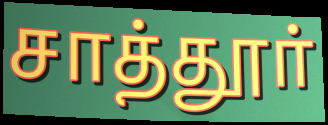
சாத்தூர்